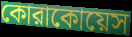
কোরাকোয়েস